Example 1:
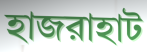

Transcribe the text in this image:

হাজরাহাট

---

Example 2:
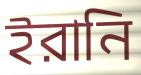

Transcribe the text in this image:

ইরানি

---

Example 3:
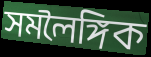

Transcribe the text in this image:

সমলৈঙ্গিক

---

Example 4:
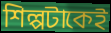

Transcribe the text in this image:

শিল্পটাকেই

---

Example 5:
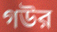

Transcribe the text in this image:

গউর